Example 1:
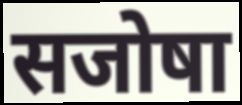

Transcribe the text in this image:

सजोषा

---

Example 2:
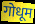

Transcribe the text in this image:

गोधूम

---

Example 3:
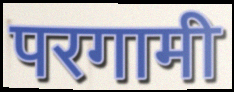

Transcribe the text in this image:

परगामी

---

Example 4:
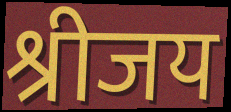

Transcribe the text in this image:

श्रीजय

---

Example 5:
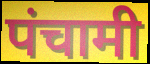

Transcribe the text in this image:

पंचामी